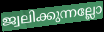
ജ്വലിക്കുന്നല്ലോ